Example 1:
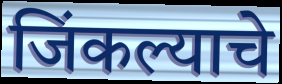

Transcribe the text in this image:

जिंकल्याचे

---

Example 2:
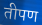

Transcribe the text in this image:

तीपण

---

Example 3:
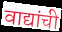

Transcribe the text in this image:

वाद्यांची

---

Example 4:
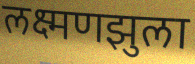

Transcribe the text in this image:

लक्ष्मणझुला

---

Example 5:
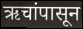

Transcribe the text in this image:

ऋचांपासून